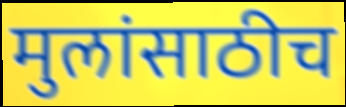
मुलांसाठीच